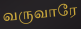
வருவாரே